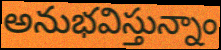
అనుభవిస్తున్నాం